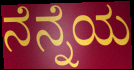
ನೆನ್ನೆಯ